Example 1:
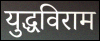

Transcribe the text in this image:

युद्धविराम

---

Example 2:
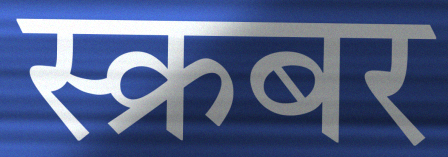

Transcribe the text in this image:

स्‍क्रबर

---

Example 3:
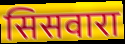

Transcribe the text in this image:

सिसवारा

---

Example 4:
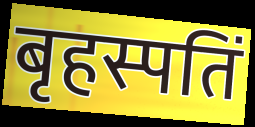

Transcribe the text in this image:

बृहस्पतिं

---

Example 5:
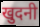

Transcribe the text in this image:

खुदनी